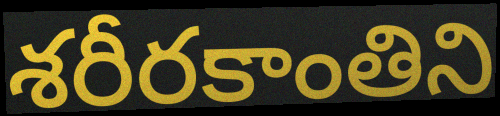
శరీరకాంతిని